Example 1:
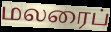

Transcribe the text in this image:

மலரைப்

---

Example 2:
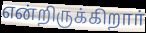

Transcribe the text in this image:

என்றிருக்கிறார்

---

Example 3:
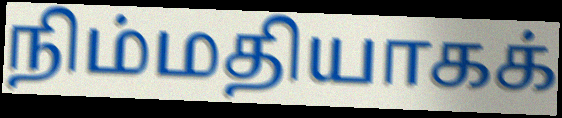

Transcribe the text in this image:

நிம்மதியாகக்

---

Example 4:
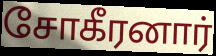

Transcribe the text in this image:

சோகீரனார்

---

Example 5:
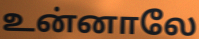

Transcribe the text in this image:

உன்னாலே